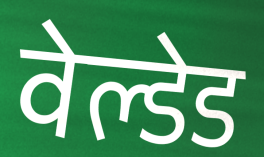
वेल्डेड